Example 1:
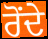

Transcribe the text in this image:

ਰੋਂਦੇ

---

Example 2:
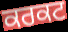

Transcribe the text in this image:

ਕਰਕਟ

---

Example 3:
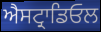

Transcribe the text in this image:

ਐਸਟ੍ਰਾਡਿਓਲ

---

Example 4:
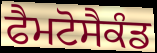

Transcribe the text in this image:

ਫੈਮਟੋਸੈਕੰਡ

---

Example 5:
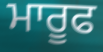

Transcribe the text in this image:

ਮਾਰੂਫ